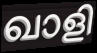
ഖാളി